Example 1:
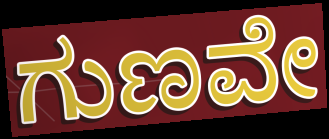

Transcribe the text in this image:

ಗುಣವೇ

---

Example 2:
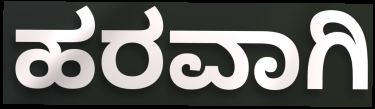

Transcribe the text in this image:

ಹರವಾಗಿ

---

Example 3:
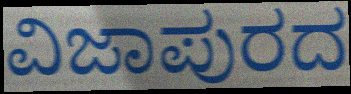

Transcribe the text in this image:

ವಿಜಾಪುರದ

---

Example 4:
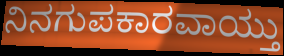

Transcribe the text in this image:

ನಿನಗುಪಕಾರವಾಯ್ತು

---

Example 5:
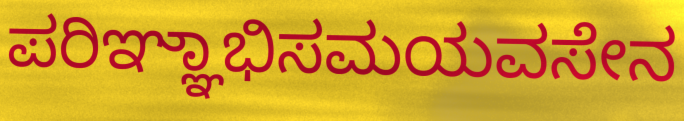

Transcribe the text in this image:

ಪರಿಞ್ಞಾಭಿಸಮಯವಸೇನ